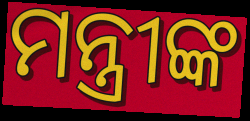
ମନ୍ତ୍ରୀଙ୍କ